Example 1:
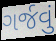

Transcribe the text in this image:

ગર્જવું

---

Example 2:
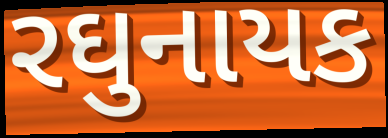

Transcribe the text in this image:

રઘુનાયક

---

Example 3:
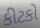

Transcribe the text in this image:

કીટકો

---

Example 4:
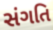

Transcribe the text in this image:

સંગતિ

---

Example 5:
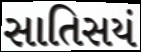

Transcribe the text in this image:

સાતિસયં